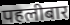
पहलीबार